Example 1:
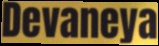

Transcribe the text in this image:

Devaneya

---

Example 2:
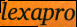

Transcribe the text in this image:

lexapro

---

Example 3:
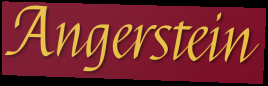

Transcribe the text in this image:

Angerstein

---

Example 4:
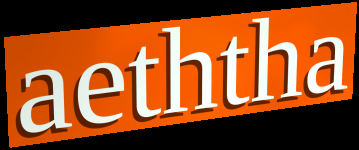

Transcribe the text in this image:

aeththa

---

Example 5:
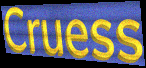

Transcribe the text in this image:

Cruess